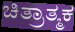
ಚಿತ್ರಾತ್ಮಕ